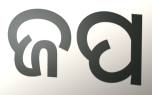
ଜପ